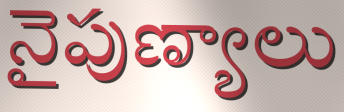
నైపుణ్యాలు